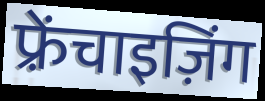
फ़्रेंचाइज़िंग